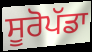
ਸੂਰੋਪੱਡਾ